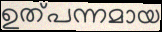
ഉത്പന്നമായ